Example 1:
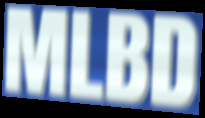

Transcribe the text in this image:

MLBD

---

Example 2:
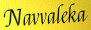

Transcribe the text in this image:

Navvaleka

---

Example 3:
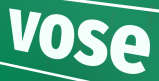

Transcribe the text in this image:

vose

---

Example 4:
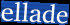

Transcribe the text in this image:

ellade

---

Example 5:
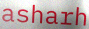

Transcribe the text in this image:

asharh